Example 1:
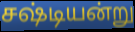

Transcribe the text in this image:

சஷ்டியன்று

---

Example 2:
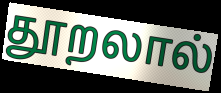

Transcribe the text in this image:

தூறலால்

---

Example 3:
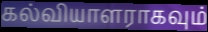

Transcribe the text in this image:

கல்வியாளராகவும்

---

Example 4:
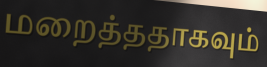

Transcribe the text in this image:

மறைத்ததாகவும்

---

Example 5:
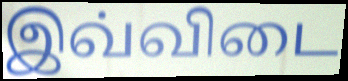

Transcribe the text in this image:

இவ்விடை